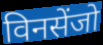
विनसेंजो